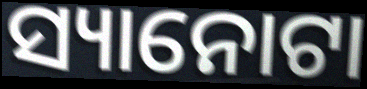
ସ୍ୟାନୋଟା